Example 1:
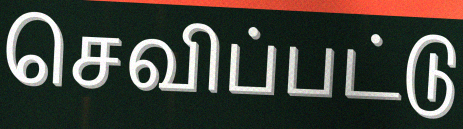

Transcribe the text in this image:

செவிப்பட்டு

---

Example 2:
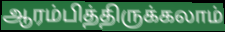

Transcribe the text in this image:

ஆரம்பித்திருக்கலாம்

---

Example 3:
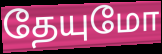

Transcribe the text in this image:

தேயுமோ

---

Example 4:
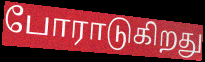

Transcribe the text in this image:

போராடுகிறது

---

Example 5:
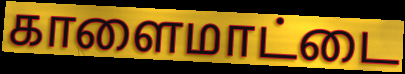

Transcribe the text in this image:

காளைமாட்டை